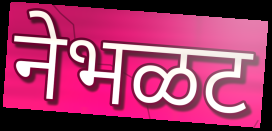
नेभळट